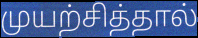
முயற்சித்தால்